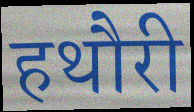
हथौरी